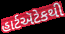
હાર્ટઍટેકથી